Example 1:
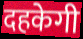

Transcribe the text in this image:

दहकेगी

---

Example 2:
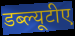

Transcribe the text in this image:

डब्ल्यूटीए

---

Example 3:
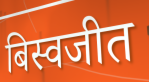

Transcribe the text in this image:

बिस्वजीत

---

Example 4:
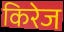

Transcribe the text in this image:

किरेज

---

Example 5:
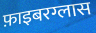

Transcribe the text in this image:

फ़ाइबरग्लास